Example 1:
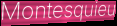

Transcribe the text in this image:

Montesquieu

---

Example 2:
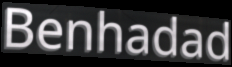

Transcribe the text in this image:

Benhadad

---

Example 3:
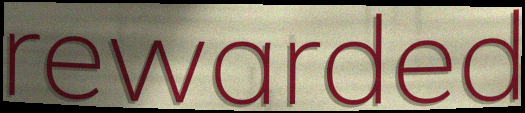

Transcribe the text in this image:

rewarded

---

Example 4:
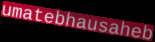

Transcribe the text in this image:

umatebhausaheb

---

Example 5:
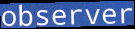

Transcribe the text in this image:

observer